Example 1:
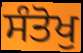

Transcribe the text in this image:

ਸੰਤੋਖੁ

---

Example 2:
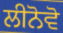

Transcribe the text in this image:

ਲੀਨੋਵੋ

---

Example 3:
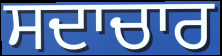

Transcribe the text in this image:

ਸਦਾਚਾਰ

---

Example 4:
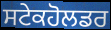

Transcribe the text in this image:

ਸਟੇਕਹੋਲਡਰ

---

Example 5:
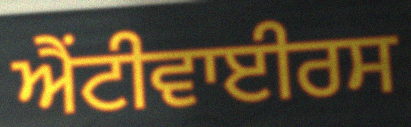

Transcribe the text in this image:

ਐਂਟੀਵਾਈਰਸ